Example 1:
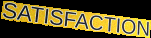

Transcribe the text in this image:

SATISFACTION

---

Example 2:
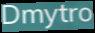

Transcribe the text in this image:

Dmytro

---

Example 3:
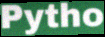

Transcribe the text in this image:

Pytho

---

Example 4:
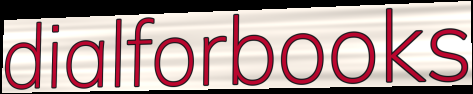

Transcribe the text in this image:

dialforbooks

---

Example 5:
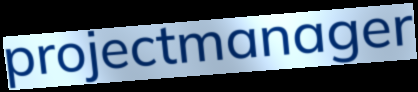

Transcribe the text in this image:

projectmanager